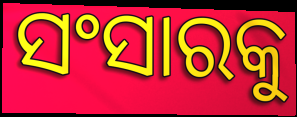
ସଂସାରକୁ